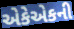
એકેએકની